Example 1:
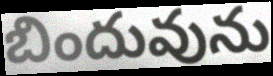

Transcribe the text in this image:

బిందువును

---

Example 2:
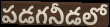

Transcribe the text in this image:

పడగనీడలో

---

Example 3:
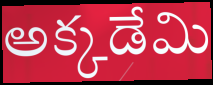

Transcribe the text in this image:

అక్కడేమి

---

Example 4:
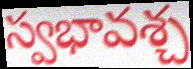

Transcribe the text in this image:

స్వభావశ్చ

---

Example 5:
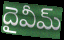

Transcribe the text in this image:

దైవీమ్